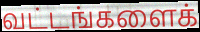
வட்டங்களைக்